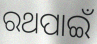
ରଥପାଇଁ